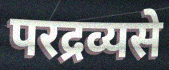
परद्रव्यसे